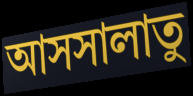
আসসালাতু